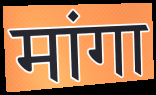
मांगा